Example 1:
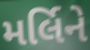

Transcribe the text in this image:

મર્લિને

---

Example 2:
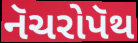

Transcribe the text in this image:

નૅચરોપૅથ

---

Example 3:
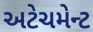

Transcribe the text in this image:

અટેચમેન્ટ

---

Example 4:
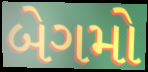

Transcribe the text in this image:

બેગમો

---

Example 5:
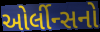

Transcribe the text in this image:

ઓર્લીન્સનો